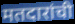
मतदारांची